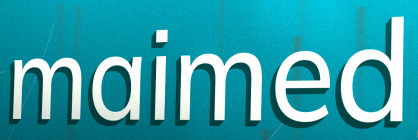
maimed